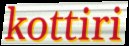
kottiri